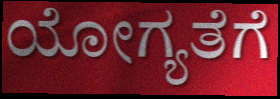
ಯೋಗ್ಯತೆಗೆ